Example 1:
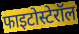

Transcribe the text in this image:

फाइटोस्टेरॉल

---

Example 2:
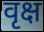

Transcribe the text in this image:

वृक्ष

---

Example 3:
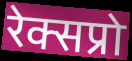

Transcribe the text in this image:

रेक्सप्रो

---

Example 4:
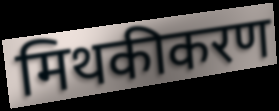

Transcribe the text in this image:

मिथकीकरण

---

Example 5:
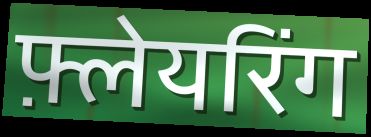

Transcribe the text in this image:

फ़्लेयरिंग